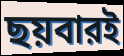
ছয়বারই